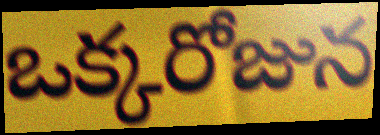
ఒక్కరోజున